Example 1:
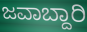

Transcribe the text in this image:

ಜವಾಬ್ದಾರಿ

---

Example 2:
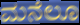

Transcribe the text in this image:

ಮನೆಲೂ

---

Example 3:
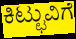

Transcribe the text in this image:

ಕಿಟ್ಟುವಿಗೆ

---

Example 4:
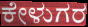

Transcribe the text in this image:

ಕೇಳುಗರ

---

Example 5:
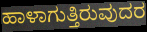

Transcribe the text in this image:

ಹಾಳಾಗುತ್ತಿರುವುದರ